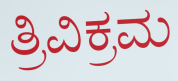
ತ್ರಿವಿಕ್ರಮ